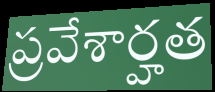
ప్రవేశార్హత